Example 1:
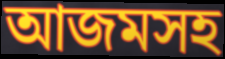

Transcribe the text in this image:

আজমসহ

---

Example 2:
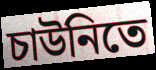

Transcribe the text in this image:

চাউনিতে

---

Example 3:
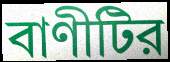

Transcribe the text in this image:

বাণীটির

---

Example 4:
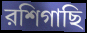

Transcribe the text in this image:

রশিগাছি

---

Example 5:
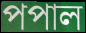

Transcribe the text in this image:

পপাল